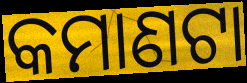
କମାଣଟା